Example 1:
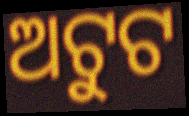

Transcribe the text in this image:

ଅଟୁଟ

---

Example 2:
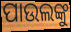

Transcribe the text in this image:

ପାଉଲଙ୍କୁ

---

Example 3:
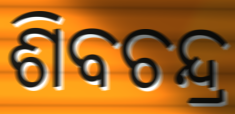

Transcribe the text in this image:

ଶିବଚନ୍ଦ୍ର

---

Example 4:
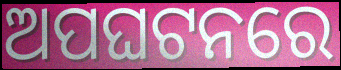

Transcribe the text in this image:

ଅପଘଟନରେ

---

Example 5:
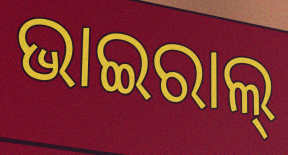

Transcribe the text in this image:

ଭାଇରାଲ୍